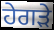
ਹੇਗੜੇ